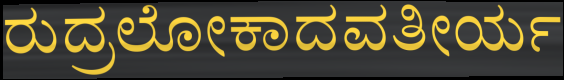
ರುದ್ರಲೋಕಾದವತೀರ್ಯ